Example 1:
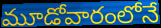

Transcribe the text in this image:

మూడోవారంలోనే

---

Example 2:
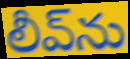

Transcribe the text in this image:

లీవ్‌ను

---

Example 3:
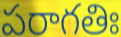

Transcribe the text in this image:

పరాగతిః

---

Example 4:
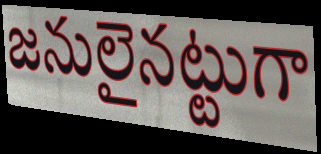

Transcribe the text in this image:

జనులైనట్టుగా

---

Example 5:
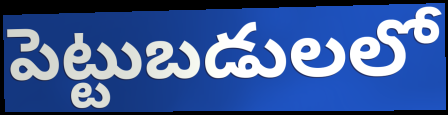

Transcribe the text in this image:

పెట్టుబడులలో